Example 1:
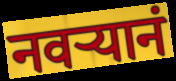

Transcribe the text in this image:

नवऱ्यानं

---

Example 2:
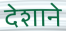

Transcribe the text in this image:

देशाने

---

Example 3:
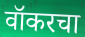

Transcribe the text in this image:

वॉकरचा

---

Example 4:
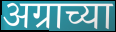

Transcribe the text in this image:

अग्राच्या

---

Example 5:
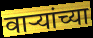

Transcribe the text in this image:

वाऱ्यांच्या